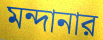
মন্দানার